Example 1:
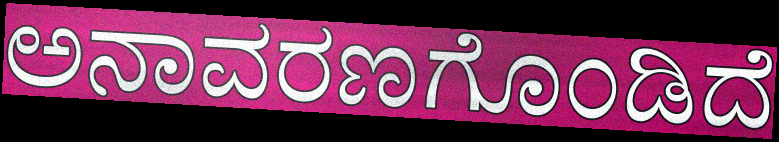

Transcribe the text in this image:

ಅನಾವರಣಗೊಂಡಿದೆ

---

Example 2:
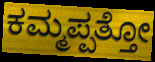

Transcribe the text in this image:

ಕಮ್ಮಪ್ಪತ್ತೋ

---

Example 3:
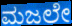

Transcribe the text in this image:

ಮಜಲೇ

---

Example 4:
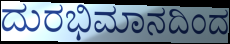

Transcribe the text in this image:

ದುರಭಿಮಾನದಿಂದ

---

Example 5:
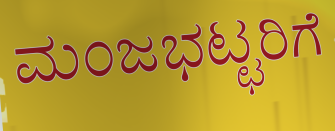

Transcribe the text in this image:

ಮಂಜಭಟ್ಟರಿಗೆ